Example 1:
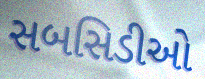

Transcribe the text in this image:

સબસિડીઓ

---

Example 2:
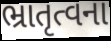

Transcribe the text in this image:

ભ્રાતૃત્વના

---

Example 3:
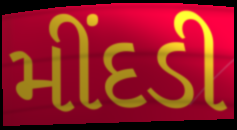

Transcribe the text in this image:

મીંદડી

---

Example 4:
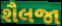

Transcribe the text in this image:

શૈલજા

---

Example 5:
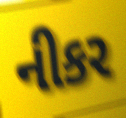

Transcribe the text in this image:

નીકર